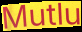
Mutlu